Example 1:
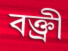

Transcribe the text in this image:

বক্ত্রী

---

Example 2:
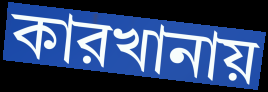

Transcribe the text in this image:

কারখানায়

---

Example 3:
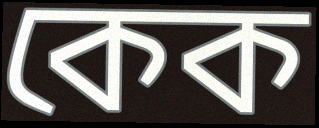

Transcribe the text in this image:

কেক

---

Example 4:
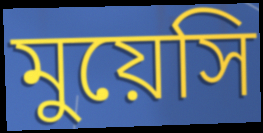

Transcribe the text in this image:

মুয়েসি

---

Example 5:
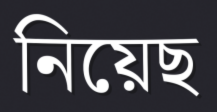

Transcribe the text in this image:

নিয়েছ